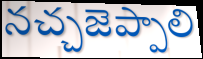
నచ్చజెప్పాలి